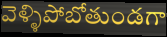
వెళ్ళిపోబోతుండగా